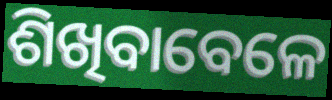
ଶିଖିବାବେଳେ